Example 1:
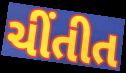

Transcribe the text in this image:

ચીંતીત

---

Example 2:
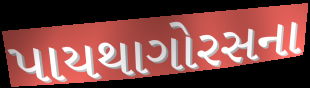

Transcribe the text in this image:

પાયથાગોરસના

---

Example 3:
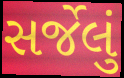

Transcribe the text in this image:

સર્જેલું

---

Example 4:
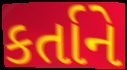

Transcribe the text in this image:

કર્તાને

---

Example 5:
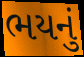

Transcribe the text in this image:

ભયનું